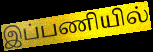
இப்பணியில்